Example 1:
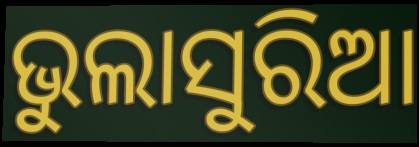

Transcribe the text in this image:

ଭୁଲାସୁରିଆ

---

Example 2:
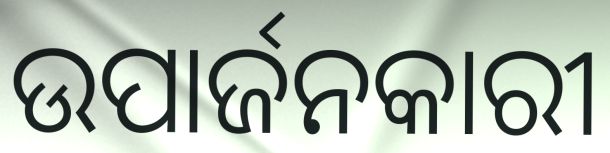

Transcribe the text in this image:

ଉପାର୍ଜନକାରୀ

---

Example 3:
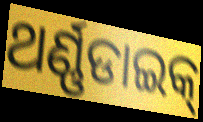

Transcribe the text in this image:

ଥର୍ଣ୍ଣଡାଇକ୍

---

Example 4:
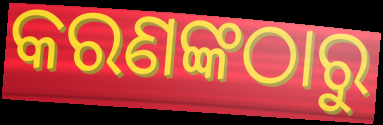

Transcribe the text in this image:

କରଣଙ୍କଠାରୁ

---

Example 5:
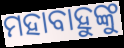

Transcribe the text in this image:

ମହାବାହୁଙ୍କୁ